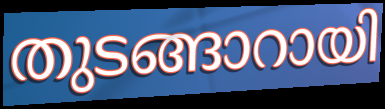
തുടങ്ങാറായി